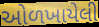
ઓળખાયેલી